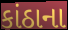
કાંઠાના